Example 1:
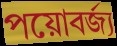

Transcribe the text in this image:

পয়োবর্জ্য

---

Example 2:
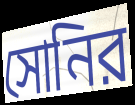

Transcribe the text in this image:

সোনির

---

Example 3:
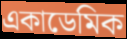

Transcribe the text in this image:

একাডেমিক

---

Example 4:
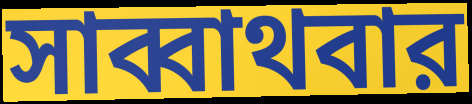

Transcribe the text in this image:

সাব্বাথবার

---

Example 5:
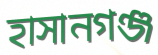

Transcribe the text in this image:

হাসানগঞ্জ